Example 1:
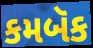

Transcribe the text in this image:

કમબૅક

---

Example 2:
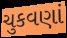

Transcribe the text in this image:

ચુકવણાં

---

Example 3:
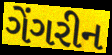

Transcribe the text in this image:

ગેંગરીન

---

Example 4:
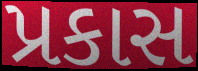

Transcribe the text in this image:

પ્રકાસ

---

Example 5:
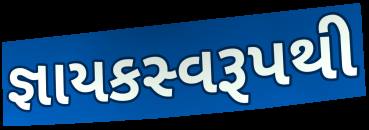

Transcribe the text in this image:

જ્ઞાયકસ્વરૂપથી